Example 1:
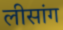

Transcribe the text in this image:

लीसांग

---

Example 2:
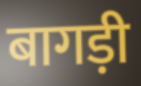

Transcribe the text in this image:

बागड़ी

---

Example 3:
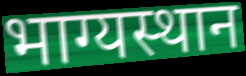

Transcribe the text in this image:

भाग्यस्थान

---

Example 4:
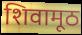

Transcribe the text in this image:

शिवामूठ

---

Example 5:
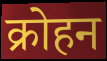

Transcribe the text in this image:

क्रोहन